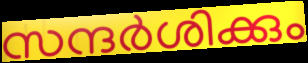
സന്ദർശിക്കും